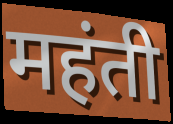
महंती